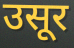
उसूर